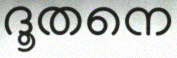
ദൂതനെ